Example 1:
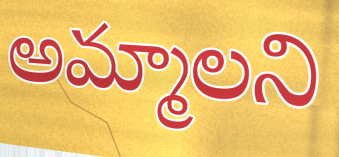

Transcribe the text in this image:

అమ్మాలని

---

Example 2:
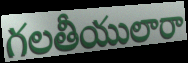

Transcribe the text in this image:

గలతీయులారా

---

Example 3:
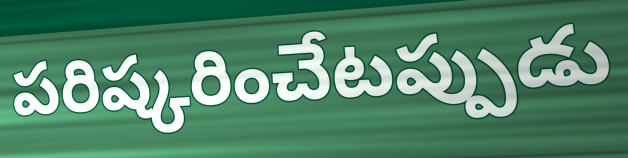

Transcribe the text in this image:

పరిష్కరించేటప్పుడు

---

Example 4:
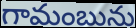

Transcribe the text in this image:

గామంబును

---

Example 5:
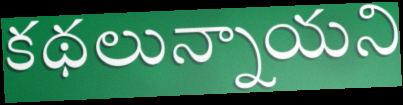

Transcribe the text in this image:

కథలున్నాయని